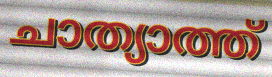
ചാത്യാത്ത്